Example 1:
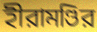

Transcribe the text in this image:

হীরামণ্ডির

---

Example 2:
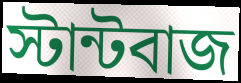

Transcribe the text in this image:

স্টান্টবাজ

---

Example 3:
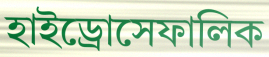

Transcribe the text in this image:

হাইড্রোসেফালিক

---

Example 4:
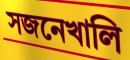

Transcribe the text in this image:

সজনেখালি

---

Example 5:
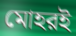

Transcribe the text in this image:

মোহরই